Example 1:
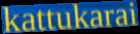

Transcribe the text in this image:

kattukarai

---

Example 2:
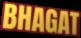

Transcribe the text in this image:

BHAGAT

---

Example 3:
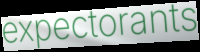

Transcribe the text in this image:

expectorants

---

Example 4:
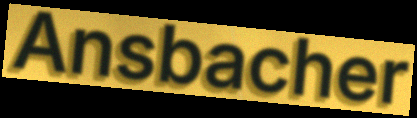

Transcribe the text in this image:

Ansbacher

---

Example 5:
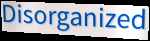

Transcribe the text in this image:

Disorganized